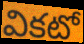
వికటో